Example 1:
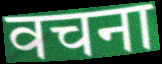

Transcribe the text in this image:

वचना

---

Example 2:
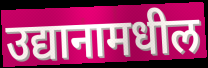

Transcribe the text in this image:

उद्यानामधील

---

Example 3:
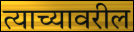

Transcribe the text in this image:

त्याच्यावरील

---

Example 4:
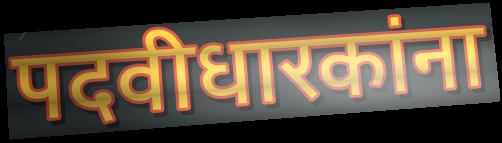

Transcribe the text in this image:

पदवीधारकांना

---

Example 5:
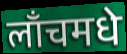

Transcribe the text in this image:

लाँचमधे